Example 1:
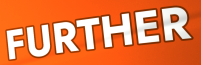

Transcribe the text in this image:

FURTHER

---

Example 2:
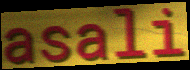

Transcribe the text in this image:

asali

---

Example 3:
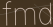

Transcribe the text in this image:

fmd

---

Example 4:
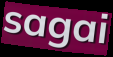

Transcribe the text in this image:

sagai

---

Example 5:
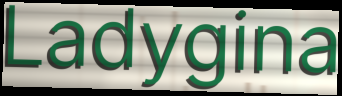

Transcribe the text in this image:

Ladygina